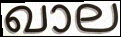
ഖാല